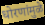
धोरणांमुळे